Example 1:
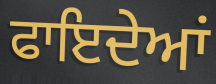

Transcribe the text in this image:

ਫਾਇਦੇਆਂ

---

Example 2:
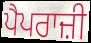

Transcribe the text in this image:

ਪੈਪਰਾਜ਼ੀ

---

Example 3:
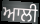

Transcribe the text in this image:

ਆਲੀ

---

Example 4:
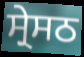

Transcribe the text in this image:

ਸ੍ਰੇਸਠ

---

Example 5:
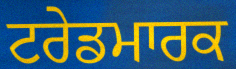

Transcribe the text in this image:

ਟਰੇਡਮਾਰਕ